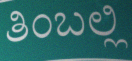
ತಿಂಬಲ್ಲಿ